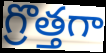
గ్రొత్తగా